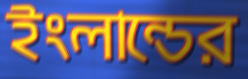
ইংলান্ডের